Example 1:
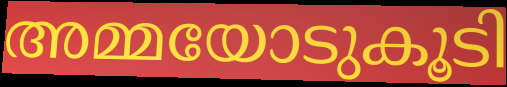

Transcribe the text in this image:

അമ്മയോടുകൂടി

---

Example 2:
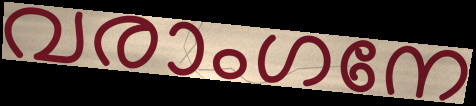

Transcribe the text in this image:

വരാംഗനേ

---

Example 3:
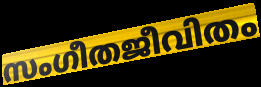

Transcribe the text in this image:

സംഗീതജീവിതം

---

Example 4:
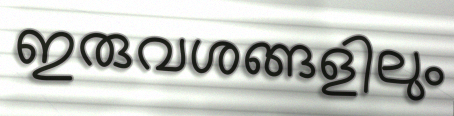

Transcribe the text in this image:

ഇരുവശങ്ങളിലും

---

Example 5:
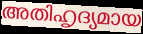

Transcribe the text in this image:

അതിഹൃദ്യമായ